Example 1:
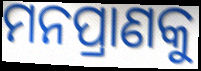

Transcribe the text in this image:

ମନପ୍ରାଣକୁ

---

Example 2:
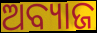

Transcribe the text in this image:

ଅବ୍ଯାଜ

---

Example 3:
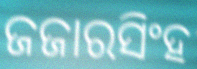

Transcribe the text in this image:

ଜଜାରସିଂହ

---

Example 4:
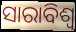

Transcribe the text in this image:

ସାରାବିଶ୍ବ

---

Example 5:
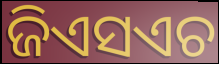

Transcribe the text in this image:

ଜିଏସଏଚ